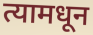
त्यामधून